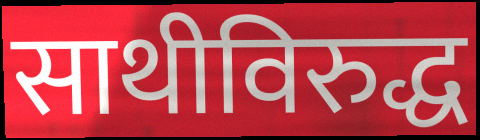
साथीविरुद्ध